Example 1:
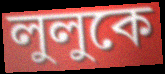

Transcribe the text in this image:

লুলুকে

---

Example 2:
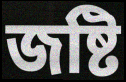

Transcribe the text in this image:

জষ্টি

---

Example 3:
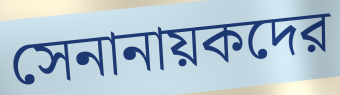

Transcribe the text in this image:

সেনানায়কদের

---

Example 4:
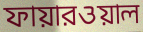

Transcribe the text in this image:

ফায়ারওয়াল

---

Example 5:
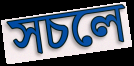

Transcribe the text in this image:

সচলে